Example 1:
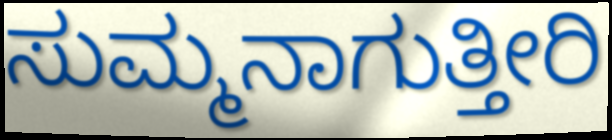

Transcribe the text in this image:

ಸುಮ್ಮನಾಗುತ್ತೀರಿ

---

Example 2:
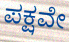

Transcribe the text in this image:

ಪಕ್ಷವೇ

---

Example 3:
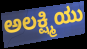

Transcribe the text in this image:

ಅಲಕ್ಷ್ಮಿಯು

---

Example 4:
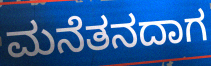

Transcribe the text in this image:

ಮನೆತನದಾಗ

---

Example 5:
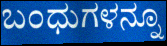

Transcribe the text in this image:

ಬಂಧುಗಳನ್ನೂ